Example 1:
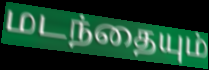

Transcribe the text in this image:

மடந்தையும்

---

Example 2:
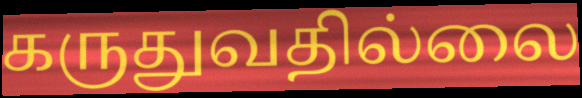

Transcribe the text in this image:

கருதுவதில்லை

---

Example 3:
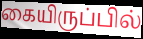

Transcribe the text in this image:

கையிருப்பில்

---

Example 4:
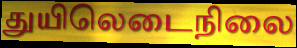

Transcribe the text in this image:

துயிலெடைநிலை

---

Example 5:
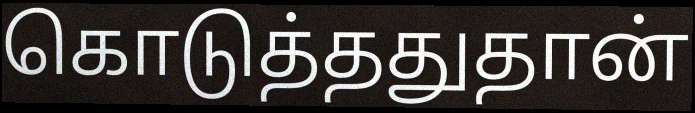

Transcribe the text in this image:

கொடுத்ததுதான்